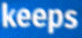
keeps